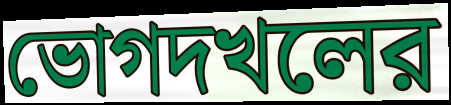
ভোগদখলের